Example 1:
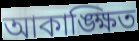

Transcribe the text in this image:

আকাঙ্ক্ষিত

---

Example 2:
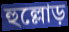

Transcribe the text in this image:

হুল্লোড়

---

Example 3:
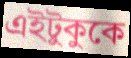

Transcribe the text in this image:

এইটুকুকে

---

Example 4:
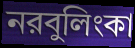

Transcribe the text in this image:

নরবুলিংকা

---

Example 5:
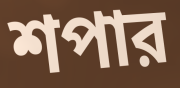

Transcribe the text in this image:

শপার